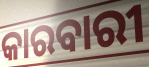
କାରବାରୀ